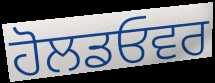
ਹੋਲਡਓਵਰ